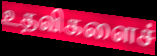
உதவிகளைச்